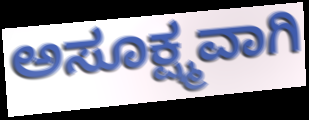
ಅಸೂಕ್ಷ್ಮವಾಗಿ